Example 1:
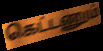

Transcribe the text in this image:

கெட்டணும்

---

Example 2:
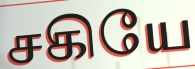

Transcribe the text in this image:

சகியே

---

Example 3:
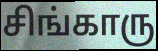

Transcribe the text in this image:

சிங்காரு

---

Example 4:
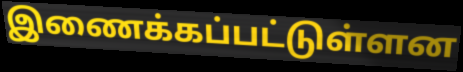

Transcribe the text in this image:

இணைக்கப்பட்டுள்ளன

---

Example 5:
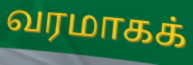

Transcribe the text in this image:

வரமாகக்